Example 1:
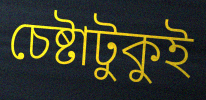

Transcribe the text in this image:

চেষ্টাটুকুই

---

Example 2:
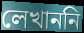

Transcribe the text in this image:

লেখাননি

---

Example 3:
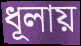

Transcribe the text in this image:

ধূলায়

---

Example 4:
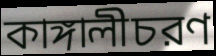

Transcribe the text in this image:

কাঙ্গালীচরণ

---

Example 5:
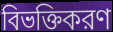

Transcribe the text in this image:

বিভক্তিকরণ